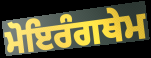
ਮੋਇਰੰਗਥੇਮ